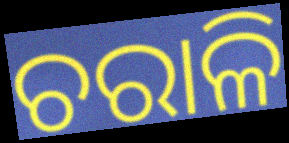
ଚରାଳି